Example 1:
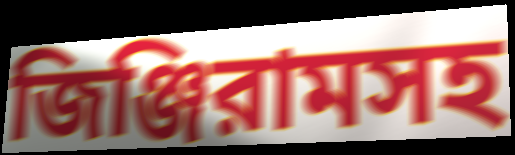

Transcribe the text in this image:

জিঞ্জিরামসহ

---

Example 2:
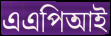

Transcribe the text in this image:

এএপিআই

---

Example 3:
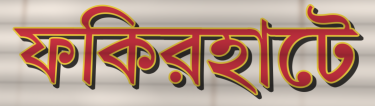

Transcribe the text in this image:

ফকিরহাটে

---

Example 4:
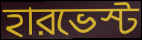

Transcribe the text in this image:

হারভেস্ট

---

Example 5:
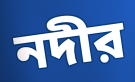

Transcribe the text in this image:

নদীর